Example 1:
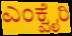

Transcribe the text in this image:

ಎಂಕ್ವೈರಿ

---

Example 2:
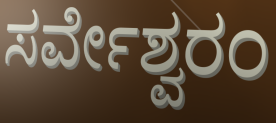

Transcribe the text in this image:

ಸರ್ವೇಶ್ವರಂ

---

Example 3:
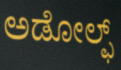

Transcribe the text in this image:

ಅಡೋಲ್ಫ್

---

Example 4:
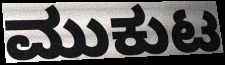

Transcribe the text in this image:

ಮುಕುಟ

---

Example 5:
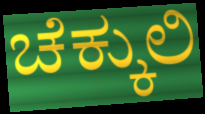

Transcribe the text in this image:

ಚೆಕ್ಕುಲಿ